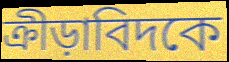
ক্রীড়াবিদকে